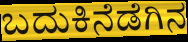
ಬದುಕಿನೆಡೆಗಿನ